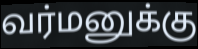
வர்மனுக்கு